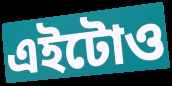
এইটোও